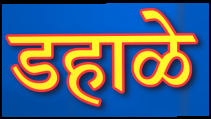
डहाळे